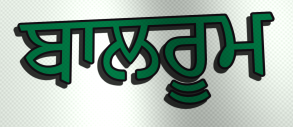
ਬਾਲਰੂਮ